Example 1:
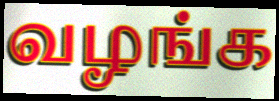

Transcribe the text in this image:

வழங்க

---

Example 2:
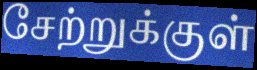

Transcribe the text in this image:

சேற்றுக்குள்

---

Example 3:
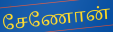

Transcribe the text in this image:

சேணோன்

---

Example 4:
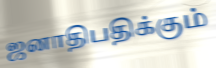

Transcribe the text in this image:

ஜனாதிபதிக்கும்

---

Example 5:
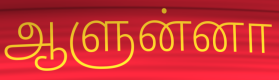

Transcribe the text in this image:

ஆளுன்னா